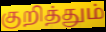
குறித்தும்